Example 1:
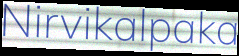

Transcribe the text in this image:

Nirvikalpaka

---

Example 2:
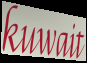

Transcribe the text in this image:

kuwait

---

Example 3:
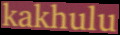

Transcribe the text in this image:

kakhulu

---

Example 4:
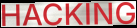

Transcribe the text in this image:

HACKING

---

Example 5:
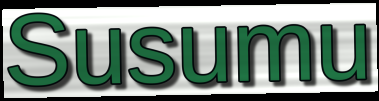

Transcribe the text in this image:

Susumu